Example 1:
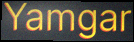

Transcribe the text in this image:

Yamgar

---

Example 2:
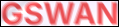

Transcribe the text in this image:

GSWAN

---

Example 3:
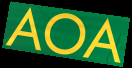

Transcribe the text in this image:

AOA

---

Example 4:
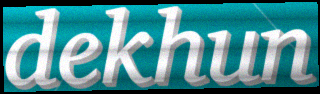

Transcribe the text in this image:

dekhun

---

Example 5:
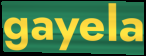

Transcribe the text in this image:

gayela